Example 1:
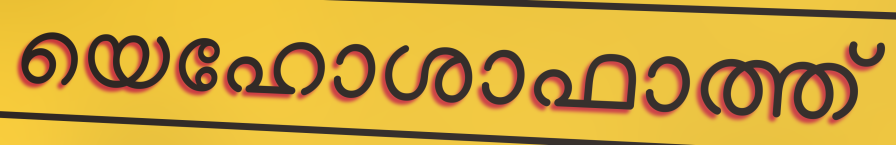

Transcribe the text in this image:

യെഹോശാഫാത്ത്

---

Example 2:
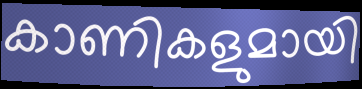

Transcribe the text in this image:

കാണികളുമായി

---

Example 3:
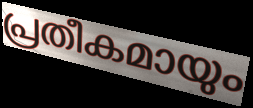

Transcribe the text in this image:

പ്രതീകമായും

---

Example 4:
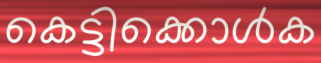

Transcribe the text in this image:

കെട്ടിക്കൊൾക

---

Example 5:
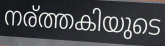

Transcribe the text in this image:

നര്ത്തകിയുടെ